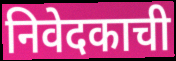
निवेदकाची